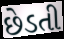
છેડતી